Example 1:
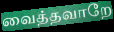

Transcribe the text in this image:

வைத்தவாறே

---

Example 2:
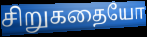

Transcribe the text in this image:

சிறுகதையோ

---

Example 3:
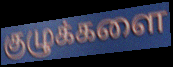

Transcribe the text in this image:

குழுக்களை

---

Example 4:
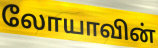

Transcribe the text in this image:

லோயாவின்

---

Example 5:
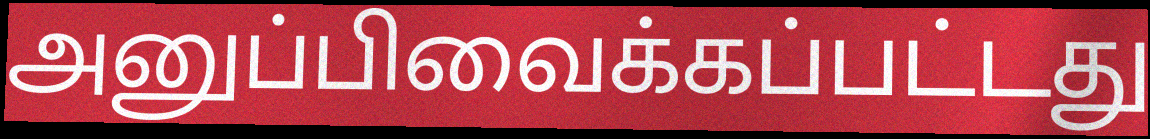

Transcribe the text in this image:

அனுப்பிவைக்கப்பட்டது